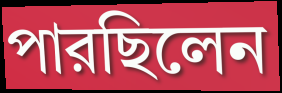
পারছিলেন